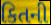
કિતની